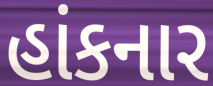
હાંકનાર